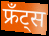
फ्रँट्स